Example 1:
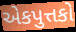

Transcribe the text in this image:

એકપુત્તકો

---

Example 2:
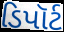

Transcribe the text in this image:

ડિપૉર્ટ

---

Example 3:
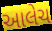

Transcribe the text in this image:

આલેચ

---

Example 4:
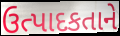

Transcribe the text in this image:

ઉત્પાદકતાને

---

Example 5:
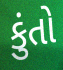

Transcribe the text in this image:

કુંતો